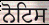
ਨੋਟਿਸ